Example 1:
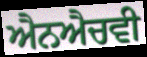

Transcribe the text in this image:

ਐਨਐਚਵੀ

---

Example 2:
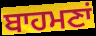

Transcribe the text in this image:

ਬਾਹਮਣਾਂ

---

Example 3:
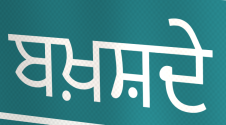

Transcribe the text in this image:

ਬਖ਼ਸ਼ਦੇ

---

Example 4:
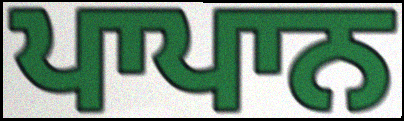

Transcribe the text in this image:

ਪਾਪਾਨ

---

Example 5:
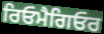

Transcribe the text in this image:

ਰਿਓਮੈਗਿਓਰ